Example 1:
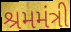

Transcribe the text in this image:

શ્રમમંત્રી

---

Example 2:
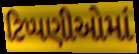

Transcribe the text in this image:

ટિપ્પણીઓમાં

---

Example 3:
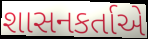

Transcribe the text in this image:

શાસનકર્તાએ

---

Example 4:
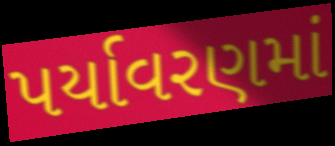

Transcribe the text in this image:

પર્યાવરણમાં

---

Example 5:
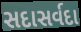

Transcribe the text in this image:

સદાસર્વદા